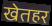
खेतहर